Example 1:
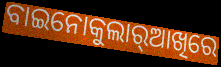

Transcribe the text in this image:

ବାଇନୋକୁଲାର୍‌ଆଖିରେ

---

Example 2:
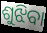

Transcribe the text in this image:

ଶୁଝିବା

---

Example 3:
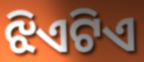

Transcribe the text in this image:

ଝିଏଟିଏ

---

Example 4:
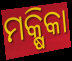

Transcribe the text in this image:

ମକ୍ଷିକା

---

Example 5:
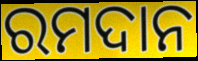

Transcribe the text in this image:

ରମଦାନ